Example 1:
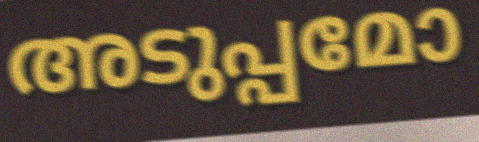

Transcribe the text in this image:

അടുപ്പമോ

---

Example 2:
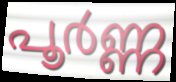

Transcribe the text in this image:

പൂർണ്ണ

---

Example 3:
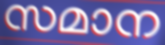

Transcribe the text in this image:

സമാന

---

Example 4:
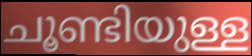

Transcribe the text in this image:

ചൂണ്ടിയുള്ള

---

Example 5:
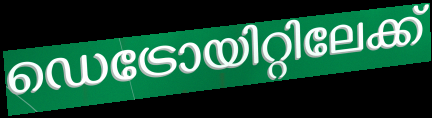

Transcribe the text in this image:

ഡെട്രോയിറ്റിലേക്ക്